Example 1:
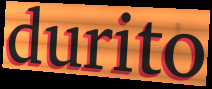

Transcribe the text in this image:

durito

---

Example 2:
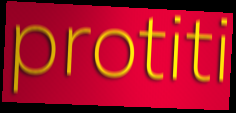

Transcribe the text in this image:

protiti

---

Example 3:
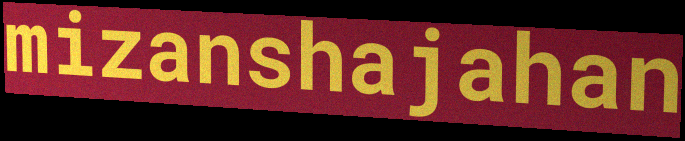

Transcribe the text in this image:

mizanshajahan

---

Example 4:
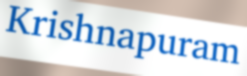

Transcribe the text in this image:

Krishnapuram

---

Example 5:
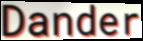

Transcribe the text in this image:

Dander